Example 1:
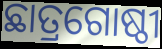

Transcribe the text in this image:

ଛାତ୍ରଗୋଷ୍ଠୀ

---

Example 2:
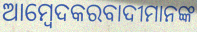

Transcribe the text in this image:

ଆମ୍ବେଦକରବାଦୀମାନଙ୍କ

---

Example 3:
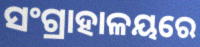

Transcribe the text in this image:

ସଂଗ୍ରାହାଳୟରେ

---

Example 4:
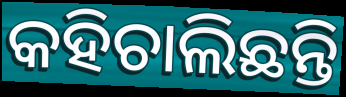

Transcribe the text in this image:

କହିଚାଲିଛନ୍ତି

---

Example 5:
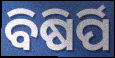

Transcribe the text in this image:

ବିଷିର୍ପି